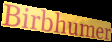
Birbhumer